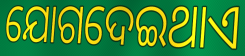
ଯୋଗଦେଇଥାଏ